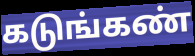
கடுங்கண்